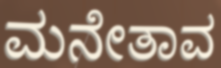
ಮನೇತಾವ